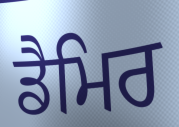
ਡੈਮਿਰ